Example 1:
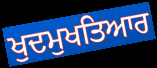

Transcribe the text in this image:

ਖੁਦਮੁਖਤਿਆਰ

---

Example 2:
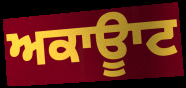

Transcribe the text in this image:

ਅਕਾਊਾਟ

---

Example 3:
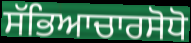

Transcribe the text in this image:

ਸੱਭਿਆਚਾਰਸੋਧੋ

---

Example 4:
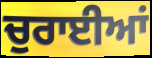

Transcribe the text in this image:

ਚੁਰਾਈਆਂ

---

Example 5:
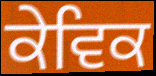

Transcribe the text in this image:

ਕੇਵਿਕ